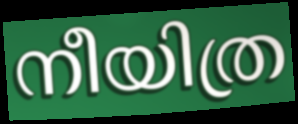
നീയിത്ര